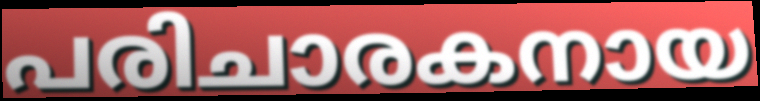
പരിചാരകനായ